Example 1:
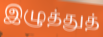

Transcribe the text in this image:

இழுத்துத்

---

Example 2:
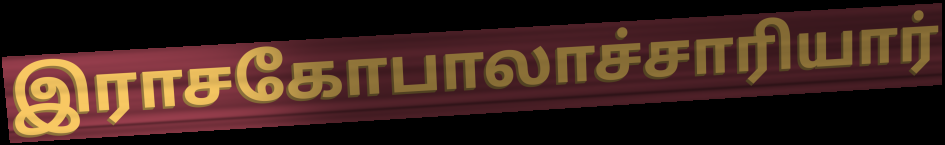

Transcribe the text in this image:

இராசகோபாலாச்சாரியார்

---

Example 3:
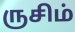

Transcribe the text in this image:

ருசிம்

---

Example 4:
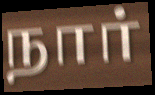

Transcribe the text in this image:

நார்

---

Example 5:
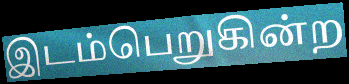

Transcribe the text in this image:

இடம்பெறுகின்ற